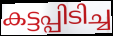
കട്ടപ്പിടിച്ച